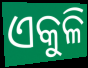
ଏକୁଳି